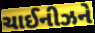
ચાઈનીઝને